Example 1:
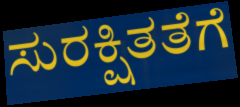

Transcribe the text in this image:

ಸುರಕ್ಷಿತತೆಗೆ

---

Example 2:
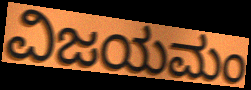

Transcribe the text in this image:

ವಿಜಯಮಂ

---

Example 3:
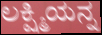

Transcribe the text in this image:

ಲಕ್ಷ್ಮಿಯನ್ನ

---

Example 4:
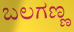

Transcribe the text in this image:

ಬಲಗಣ್ಣ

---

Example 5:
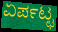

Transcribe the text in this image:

ಏರ್ಪಟ್ಟ